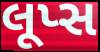
લૂપ્સ